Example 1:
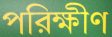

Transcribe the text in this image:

পরিক্ষীণ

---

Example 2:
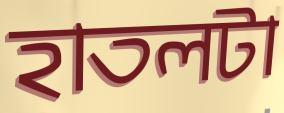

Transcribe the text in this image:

হাতলটা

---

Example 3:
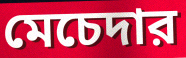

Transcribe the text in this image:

মেচেদার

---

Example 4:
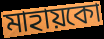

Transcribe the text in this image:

মাহায়কো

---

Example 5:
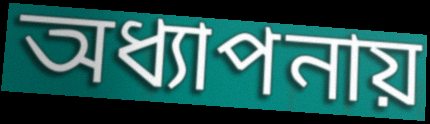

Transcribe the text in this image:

অধ্যাপনায়